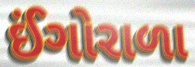
ઈંગોરાળા